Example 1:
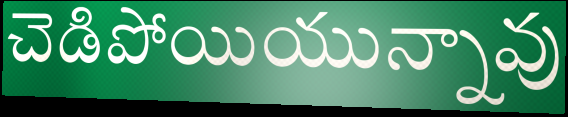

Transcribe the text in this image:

చెడిపోయియున్నావు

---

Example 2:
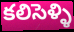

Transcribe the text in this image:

కలిసెళ్ళి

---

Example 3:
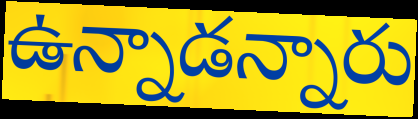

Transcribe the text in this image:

ఉన్నాడన్నారు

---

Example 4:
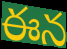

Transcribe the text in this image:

ఈన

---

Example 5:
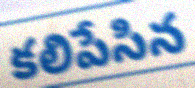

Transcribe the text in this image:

కలిపేసిన